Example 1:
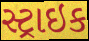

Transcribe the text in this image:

સ્ટ્રાઇક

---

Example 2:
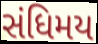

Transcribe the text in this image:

સંધિમય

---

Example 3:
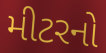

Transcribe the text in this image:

મીટરનો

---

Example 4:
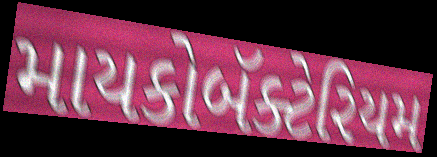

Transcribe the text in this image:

માયકોબૅક્ટેરિયમ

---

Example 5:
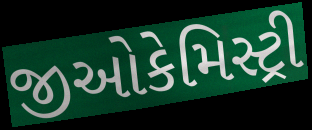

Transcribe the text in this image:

જીઓકેમિસ્ટ્રી